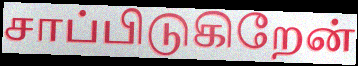
சாப்பிடுகிறேன்